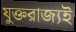
যুক্তরাজ্যই